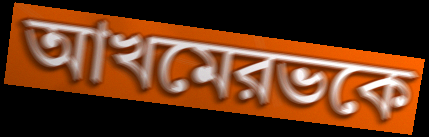
আখমেরভকে